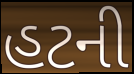
હટની